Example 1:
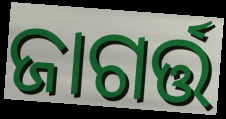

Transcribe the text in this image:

ଜାଗର୍ତ୍ତ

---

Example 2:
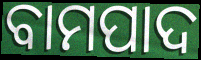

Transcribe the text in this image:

ବାମପାଦ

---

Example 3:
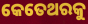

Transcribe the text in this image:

କେତେଥରକୁ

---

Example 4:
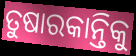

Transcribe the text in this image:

ତୁଷାରକାନ୍ତିକୁ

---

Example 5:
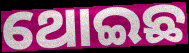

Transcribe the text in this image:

ଥୋଇଛ